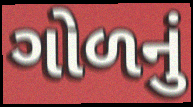
ગોળનું